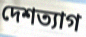
দেশত্যাগ